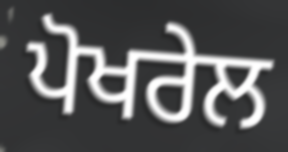
ਪੋਖਰੇਲ